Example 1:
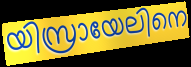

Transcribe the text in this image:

യിസ്രായേലിനെ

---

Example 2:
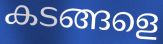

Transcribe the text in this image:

കടങ്ങളെ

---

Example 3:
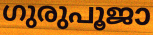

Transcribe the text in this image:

ഗുരുപൂജാ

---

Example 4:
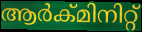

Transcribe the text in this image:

ആർക്മിനിറ്റ്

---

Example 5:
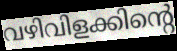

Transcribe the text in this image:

വഴിവിളക്കിന്റെ